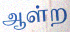
ஆள்ற